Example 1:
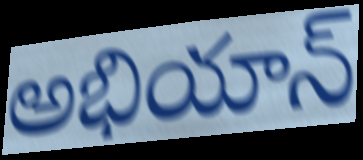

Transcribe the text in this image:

అభియాన్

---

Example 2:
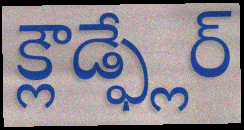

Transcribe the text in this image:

క్లౌడ్ఫ్లేర్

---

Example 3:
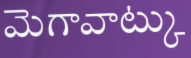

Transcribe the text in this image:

మెగావాట్కు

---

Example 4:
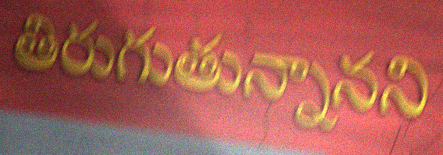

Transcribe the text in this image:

తిరుగుతున్నానని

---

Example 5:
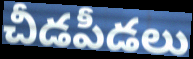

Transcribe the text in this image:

చీడపీడలు